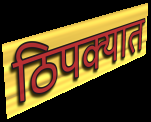
ठिपक्यात